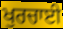
ਖੁਰਚਾਈ